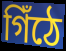
গিঁঠে